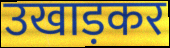
उखाड़कर